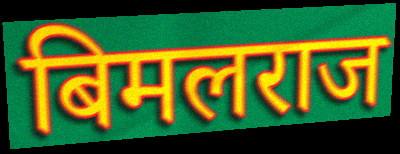
बिमलराज